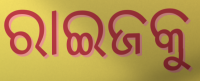
ରାଇଜକୁ